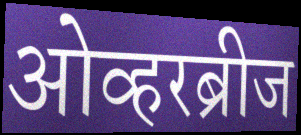
ओव्हरब्रीज